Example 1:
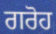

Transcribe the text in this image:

ਗਰੋਹ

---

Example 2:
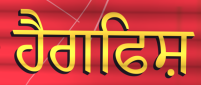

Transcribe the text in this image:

ਹੈਗਫਿਸ਼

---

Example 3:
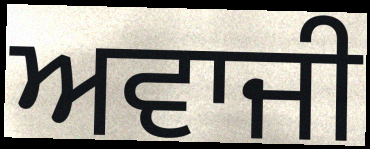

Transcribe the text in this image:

ਅਵਾਜੀ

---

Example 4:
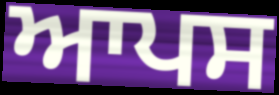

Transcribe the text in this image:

ਆਪਸ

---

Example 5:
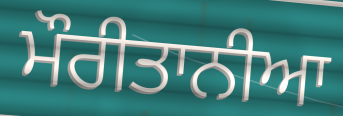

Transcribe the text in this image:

ਮੌਰੀਤਾਨੀਆ